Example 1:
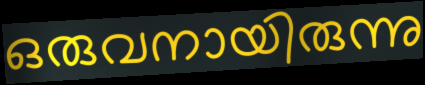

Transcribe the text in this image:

ഒരുവനായിരുന്നു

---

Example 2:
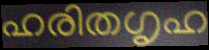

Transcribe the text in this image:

ഹരിതഗൃഹ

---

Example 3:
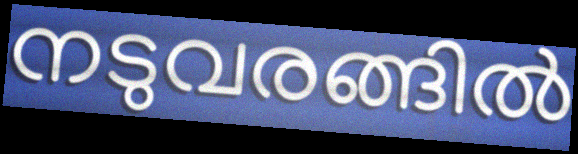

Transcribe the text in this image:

നടുവരങ്ങിൽ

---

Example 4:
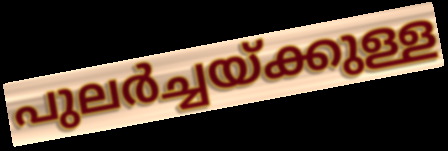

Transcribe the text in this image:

പുലർച്ചയ്ക്കുള്ള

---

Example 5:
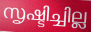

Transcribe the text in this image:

സൃഷ്ടിച്ചില്ല